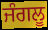
ਜੰਗਲੂ